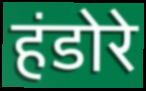
हंडोरे